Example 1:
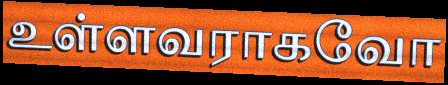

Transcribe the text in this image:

உள்ளவராகவோ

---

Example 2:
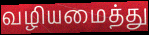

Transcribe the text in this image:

வழியமைத்து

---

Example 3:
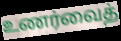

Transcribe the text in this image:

உணர்வைத்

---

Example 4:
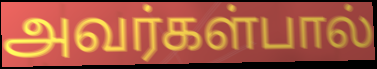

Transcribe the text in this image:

அவர்கள்பால்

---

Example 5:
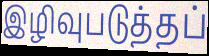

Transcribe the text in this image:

இழிவுபடுத்தப்